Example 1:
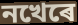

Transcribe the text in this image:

নখেৰে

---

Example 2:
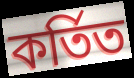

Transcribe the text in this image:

কৰ্তিত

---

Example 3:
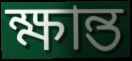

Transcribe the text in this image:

ক্ষান্ত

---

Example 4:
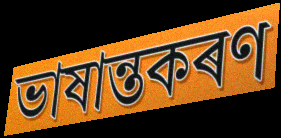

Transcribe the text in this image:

ভাষান্তকৰণ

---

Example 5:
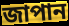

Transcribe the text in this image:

জাপান